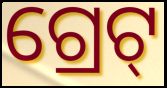
ଗ୍ରେଟ୍